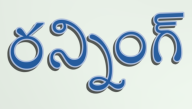
రన్నింగ్